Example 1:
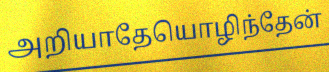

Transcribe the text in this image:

அறியாதேயொழிந்தேன்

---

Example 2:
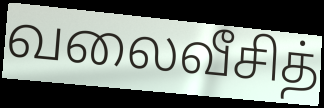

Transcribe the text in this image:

வலைவீசித்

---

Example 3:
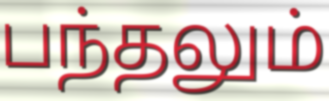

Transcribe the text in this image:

பந்தலும்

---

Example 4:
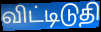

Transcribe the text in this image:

விட்டிடுதி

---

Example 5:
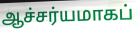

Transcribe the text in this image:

ஆச்சர்யமாகப்